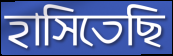
হাসিতেছি